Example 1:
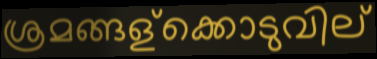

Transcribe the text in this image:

ശ്രമങ്ങള്ക്കൊടുവില്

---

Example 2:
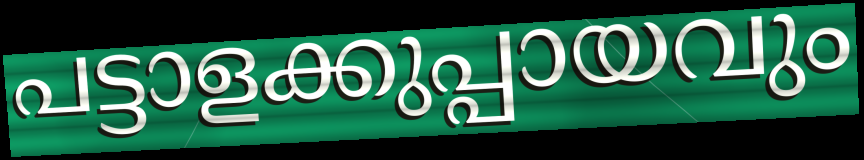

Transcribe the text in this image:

പട്ടാളക്കുപ്പായവും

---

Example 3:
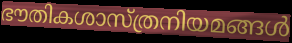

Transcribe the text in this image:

ഭൗതികശാസ്ത്രനിയമങ്ങൾ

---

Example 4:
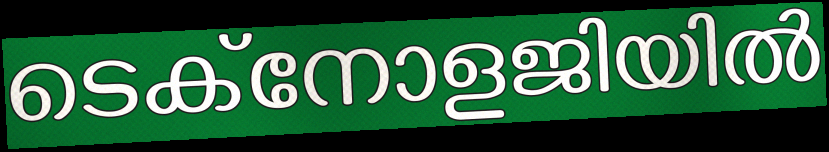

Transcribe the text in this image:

ടെക്‌നോളജിയിൽ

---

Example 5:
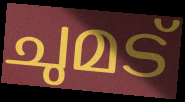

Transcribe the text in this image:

ചുമട്